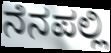
ನೆನಪಲ್ಲಿ